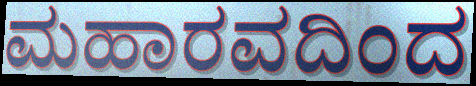
ಮಹಾರವದಿಂದ